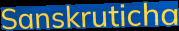
Sanskruticha